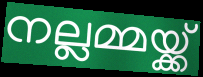
നല്ലമ്മയ്ക്ക്